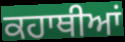
ਕਹਾਥੀਆਂ